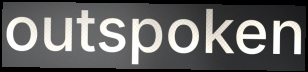
outspoken